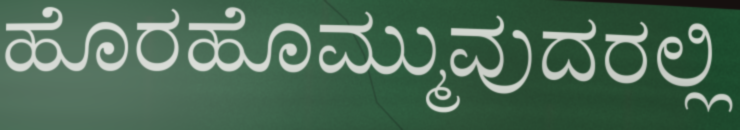
ಹೊರಹೊಮ್ಮುವುದರಲ್ಲಿ